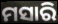
ମସାରି